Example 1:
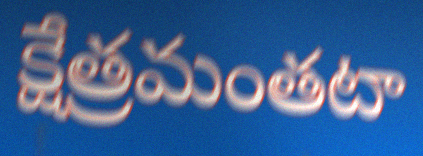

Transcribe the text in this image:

క్షేత్రమంతటా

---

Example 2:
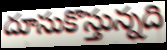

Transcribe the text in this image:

దూసుకొస్తున్నది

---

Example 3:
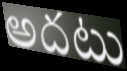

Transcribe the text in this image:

అదటు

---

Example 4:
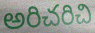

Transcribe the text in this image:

అరిచరిచి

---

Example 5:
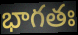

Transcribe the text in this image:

భాగతః